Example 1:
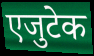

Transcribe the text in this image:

एजुटेक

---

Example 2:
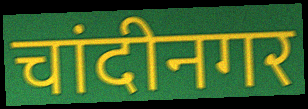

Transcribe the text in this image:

चांदीनगर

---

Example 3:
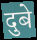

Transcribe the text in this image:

दुबे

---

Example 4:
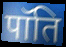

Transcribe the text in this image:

पॉति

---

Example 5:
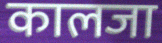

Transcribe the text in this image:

कालजा